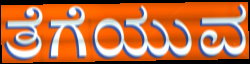
ತೆಗೆಯುವ